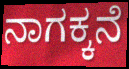
ನಾಗಕ್ಕನೆ